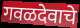
गवळदेवाचे